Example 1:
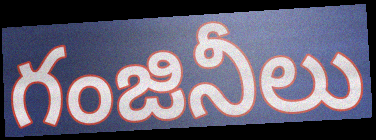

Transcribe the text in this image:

గంజినీలు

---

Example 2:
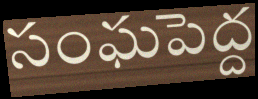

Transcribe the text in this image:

సంఘపెద్ద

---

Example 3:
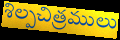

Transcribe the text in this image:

శిల్పచిత్రములు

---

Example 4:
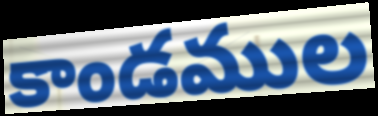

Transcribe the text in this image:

కాండముల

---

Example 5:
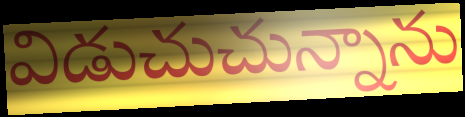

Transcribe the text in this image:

విడుచుచున్నాను